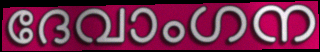
ദേവാംഗന